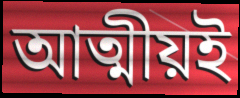
আত্মীয়ই